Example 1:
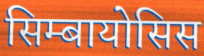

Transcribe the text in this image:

सिम्बायोसिस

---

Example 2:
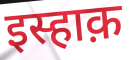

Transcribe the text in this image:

इस्हाक़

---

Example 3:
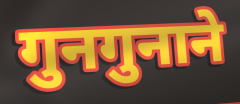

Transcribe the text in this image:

गुनगुनाने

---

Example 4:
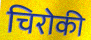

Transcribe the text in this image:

चिरोकी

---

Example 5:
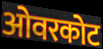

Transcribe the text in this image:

ओवरकोट